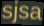
sjsa